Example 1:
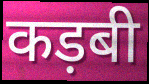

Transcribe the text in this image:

कड़बी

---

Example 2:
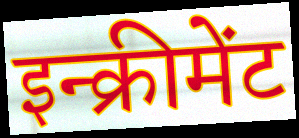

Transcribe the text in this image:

इन्क्रीमेंट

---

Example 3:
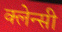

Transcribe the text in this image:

क्लेन्सी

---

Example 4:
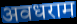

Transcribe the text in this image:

अवधराम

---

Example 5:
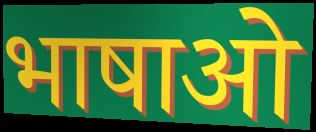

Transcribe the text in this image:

भाषाओ